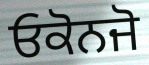
ਓਕੋਨਜੋ